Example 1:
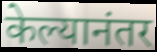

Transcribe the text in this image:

केल्यानंतर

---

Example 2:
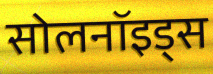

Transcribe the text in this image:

सोलनॉइड्स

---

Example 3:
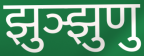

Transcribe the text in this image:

झुञ्झुणु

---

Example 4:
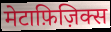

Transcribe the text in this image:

मेटाफ़िज़िक्स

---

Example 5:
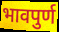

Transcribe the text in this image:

भावपुर्ण